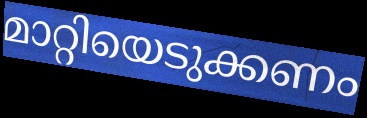
മാറ്റിയെടുക്കണം